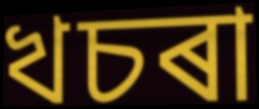
খচৰা